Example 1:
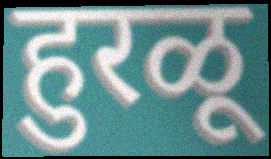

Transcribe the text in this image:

हुरळू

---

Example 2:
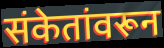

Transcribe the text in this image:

संकेतांवरून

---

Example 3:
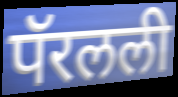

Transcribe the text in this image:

पॅरलली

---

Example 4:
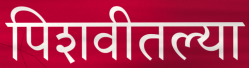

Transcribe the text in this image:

पिशवीतल्या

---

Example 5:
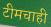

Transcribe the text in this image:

टीमचाही